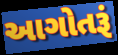
આગોતરૂં